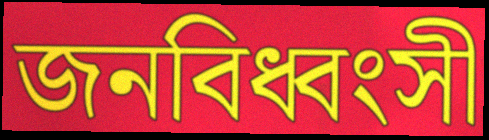
জনবিধ্বংসী